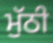
ਮੁੱਠੀ